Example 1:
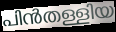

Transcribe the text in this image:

പിൻതള്ളിയ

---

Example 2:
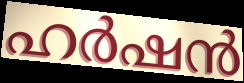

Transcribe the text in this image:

ഹർഷൻ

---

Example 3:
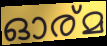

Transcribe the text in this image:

ഓര്മ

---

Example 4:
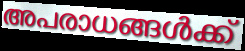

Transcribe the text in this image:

അപരാധങ്ങൾക്ക്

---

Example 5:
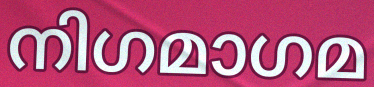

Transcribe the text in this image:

നിഗമാഗമ